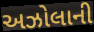
અઝોલાની